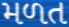
મળત